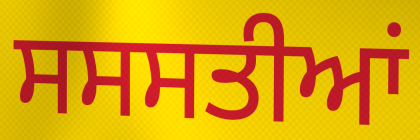
ਸਸਸਤੀਆਂ